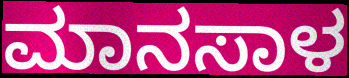
ಮಾನಸಾಳ